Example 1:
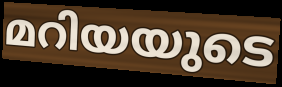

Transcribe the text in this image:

മറിയയുടെ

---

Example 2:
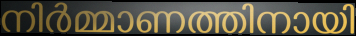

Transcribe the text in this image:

നിർമ്മാണത്തിനായി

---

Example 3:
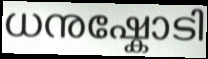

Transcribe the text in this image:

ധനുഷ്കോടി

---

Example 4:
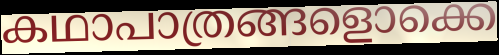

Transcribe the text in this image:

കഥാപാത്രങ്ങളൊക്കെ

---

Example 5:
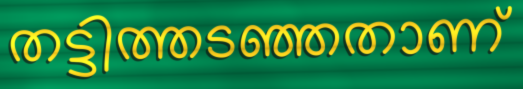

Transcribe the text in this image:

തട്ടിത്തടഞ്ഞതാണ്